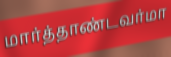
மார்த்தாண்டவர்மா